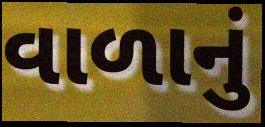
વાળાનું